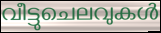
വീട്ടുചെലവുകൾ